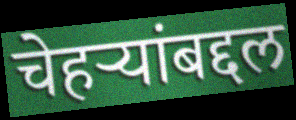
चेहऱ्यांबद्दल